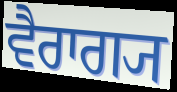
ਵੈਰਾਗ੍ਯ